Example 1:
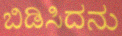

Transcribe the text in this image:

ಬಿಡಿಸಿದನು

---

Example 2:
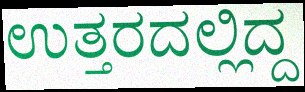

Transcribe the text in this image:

ಉತ್ತರದಲ್ಲಿದ್ದ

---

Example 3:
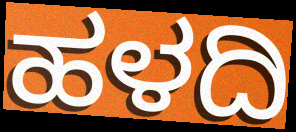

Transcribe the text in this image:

ಹಳದಿ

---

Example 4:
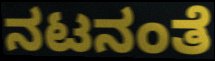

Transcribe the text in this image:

ನಟನಂತೆ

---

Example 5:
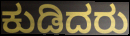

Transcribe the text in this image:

ಕುಡಿದರು